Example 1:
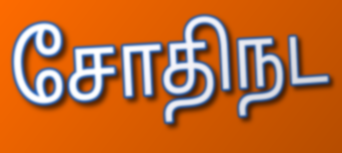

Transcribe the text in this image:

சோதிநட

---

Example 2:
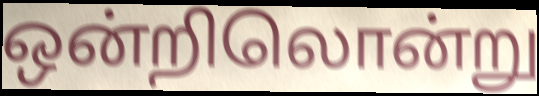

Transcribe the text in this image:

ஒன்றிலொன்று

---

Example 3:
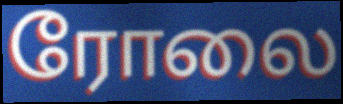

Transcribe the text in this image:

ரோலை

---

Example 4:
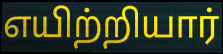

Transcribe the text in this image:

எயிற்றியார்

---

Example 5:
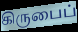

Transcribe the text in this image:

கிருபைப்